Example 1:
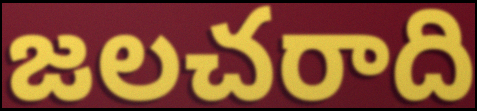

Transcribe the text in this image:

జలచరాది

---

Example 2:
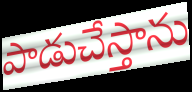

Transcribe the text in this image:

పాడుచేస్తాను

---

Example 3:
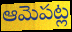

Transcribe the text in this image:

ఆమెపట్ల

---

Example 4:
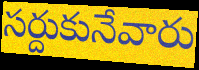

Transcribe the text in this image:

సర్దుకునేవారు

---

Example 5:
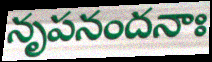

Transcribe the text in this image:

నృపనందనాః